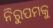
ନିରୁପମକୁ